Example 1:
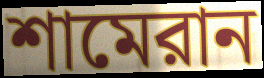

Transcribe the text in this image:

শামেরান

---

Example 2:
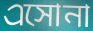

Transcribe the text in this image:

এসোনা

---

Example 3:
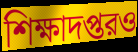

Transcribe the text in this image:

শিক্ষাদপ্তরও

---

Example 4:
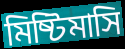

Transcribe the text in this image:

মিষ্টিমাসি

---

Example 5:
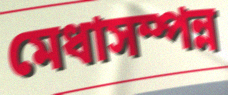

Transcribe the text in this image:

মেধাসম্পন্ন